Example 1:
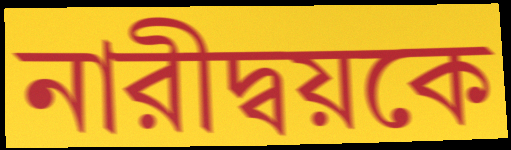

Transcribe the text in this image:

নারীদ্বয়কে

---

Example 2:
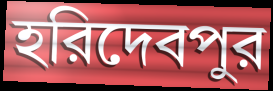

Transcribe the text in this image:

হরিদেবপুর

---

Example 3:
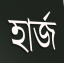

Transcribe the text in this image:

হার্জ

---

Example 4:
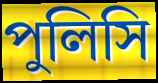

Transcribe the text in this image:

পুলিসি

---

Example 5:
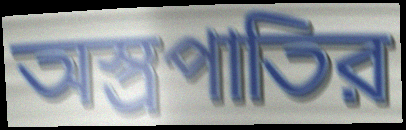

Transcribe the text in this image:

অস্ত্রপাতির